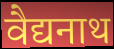
वैद्यनाथ